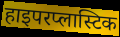
हाइपरप्लास्टिक